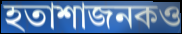
হতাশাজনকও